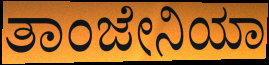
ತಾಂಜೇನಿಯಾ